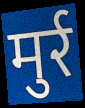
मुर्र